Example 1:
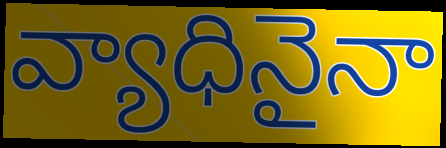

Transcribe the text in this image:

వ్యాధినైనా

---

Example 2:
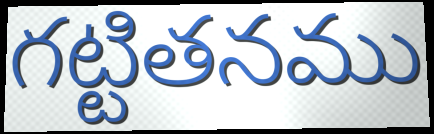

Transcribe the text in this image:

గట్టితనము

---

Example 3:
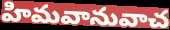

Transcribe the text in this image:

హిమవానువాచ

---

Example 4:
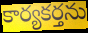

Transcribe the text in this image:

కార్యకర్తను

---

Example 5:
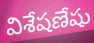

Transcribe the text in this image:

విశేషణేషు